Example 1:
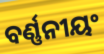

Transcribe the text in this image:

ବର୍ଣ୍ଣନୀୟଂ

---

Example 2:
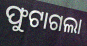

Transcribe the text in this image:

ଫୁଟାଗଲା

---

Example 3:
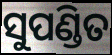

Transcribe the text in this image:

ସୁପଣ୍ଡିତ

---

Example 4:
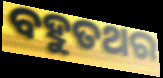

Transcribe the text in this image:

ବହୁତଥର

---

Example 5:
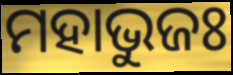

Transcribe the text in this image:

ମହାଭୁଜଃ